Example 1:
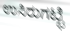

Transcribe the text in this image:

ಉಸಿರುಗಟ್ಟಿ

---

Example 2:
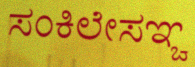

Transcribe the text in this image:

ಸಂಕಿಲೇಸಞ್ಚ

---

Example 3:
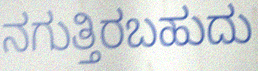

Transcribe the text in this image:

ನಗುತ್ತಿರಬಹುದು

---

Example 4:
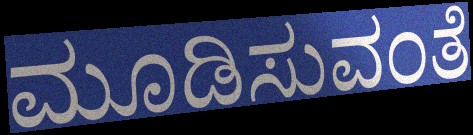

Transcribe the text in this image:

ಮೂಡಿಸುವಂತೆ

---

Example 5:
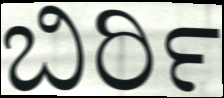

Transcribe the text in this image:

ಬಿರ್ರಿ